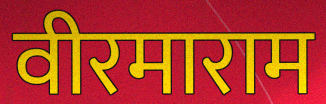
वीरमाराम